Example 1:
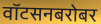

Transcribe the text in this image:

वॉटसनबरोबर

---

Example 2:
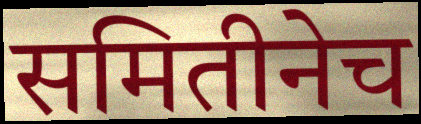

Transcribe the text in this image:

समितीनेच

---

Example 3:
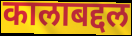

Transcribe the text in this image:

कालाबद्दल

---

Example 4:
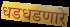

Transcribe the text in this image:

धडधडणारे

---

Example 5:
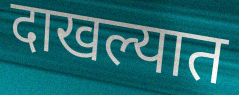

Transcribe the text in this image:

दाखल्यात